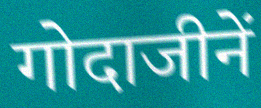
गोदाजीनें